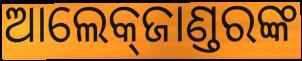
ଆଲେକ୍‍ଜାଣ୍ଡରଙ୍କ